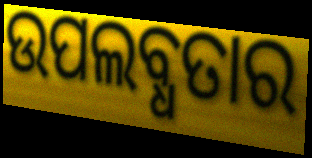
ଉପଲବ୍ଧତାର